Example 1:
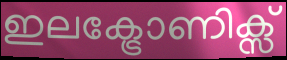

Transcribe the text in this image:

ഇലക്ട്രോണിക്സ്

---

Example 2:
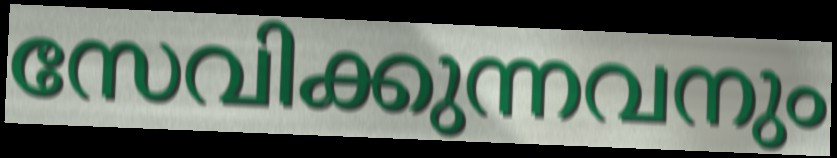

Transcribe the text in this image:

സേവിക്കുന്നവനും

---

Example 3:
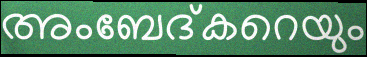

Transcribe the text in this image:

അംബേദ്കറെയും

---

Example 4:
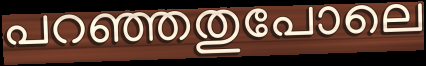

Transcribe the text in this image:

പറഞ്ഞതുപോലെ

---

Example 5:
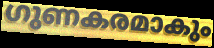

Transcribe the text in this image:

ഗുണകരമാകും